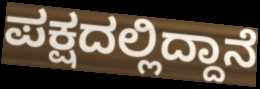
ಪಕ್ಷದಲ್ಲಿದ್ದಾನೆ